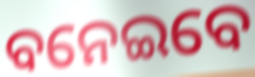
ବନେଇବେ